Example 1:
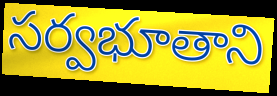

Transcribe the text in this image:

సర్వభూతాని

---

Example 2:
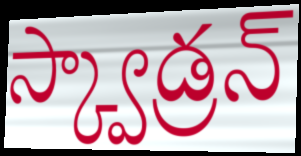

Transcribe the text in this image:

స్క్వాడ్రన్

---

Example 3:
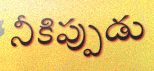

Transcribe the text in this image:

నీకిప్పుడు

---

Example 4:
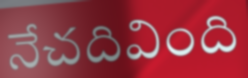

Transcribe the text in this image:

నేచదివింది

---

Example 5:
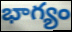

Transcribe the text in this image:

భాగ్యం